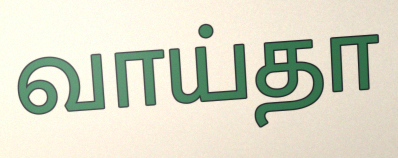
வாய்தா